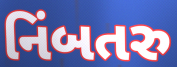
નિંબતરુ